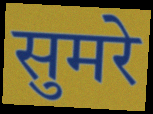
सुमरे